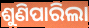
ଶୁଣିପାରିଲା